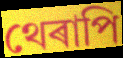
থেৰাপি